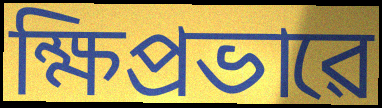
ক্ষিপ্ৰভাৱে